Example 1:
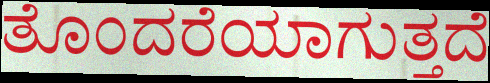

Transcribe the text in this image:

ತೊಂದರೆಯಾಗುತ್ತದೆ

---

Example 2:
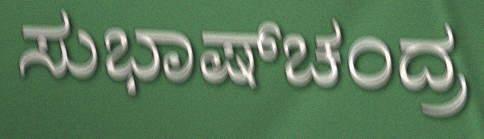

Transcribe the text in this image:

ಸುಭಾಷ್‌ಚಂದ್ರ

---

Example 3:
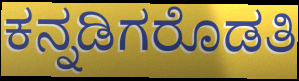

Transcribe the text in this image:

ಕನ್ನಡಿಗರೊಡತಿ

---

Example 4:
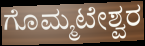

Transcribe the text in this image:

ಗೊಮ್ಮಟೇಶ್ವರ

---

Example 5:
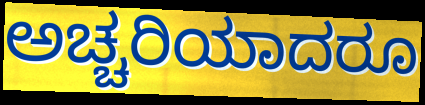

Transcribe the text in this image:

ಅಚ್ಚರಿಯಾದರೂ